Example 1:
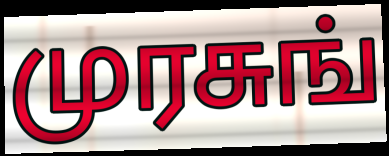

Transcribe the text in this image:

முரசுங்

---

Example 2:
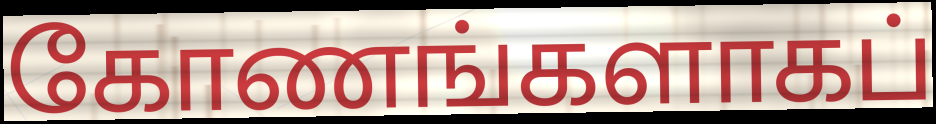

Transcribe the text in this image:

கோணங்களாகப்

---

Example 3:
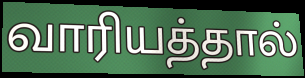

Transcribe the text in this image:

வாரியத்தால்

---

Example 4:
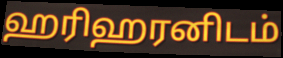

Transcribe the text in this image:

ஹரிஹரனிடம்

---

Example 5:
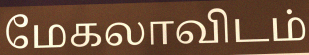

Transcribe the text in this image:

மேகலாவிடம்